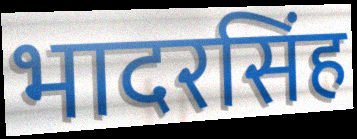
भादरसिंह